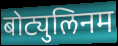
बोट्युलिनम